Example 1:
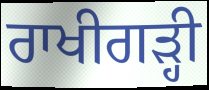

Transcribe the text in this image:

ਰਾਖੀਗੜ੍ਹੀ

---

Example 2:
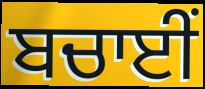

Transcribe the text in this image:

ਬਚਾਈਂ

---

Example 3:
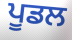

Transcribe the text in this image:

ਪੂਡਲ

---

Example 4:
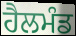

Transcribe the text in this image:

ਹੈਲਮੰਡ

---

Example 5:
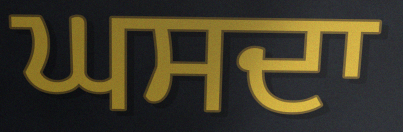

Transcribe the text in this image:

ਘਸਦਾ